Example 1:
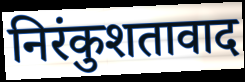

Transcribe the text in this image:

निरंकुशतावाद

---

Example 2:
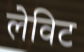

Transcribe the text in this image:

लेविट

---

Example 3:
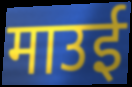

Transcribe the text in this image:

माउई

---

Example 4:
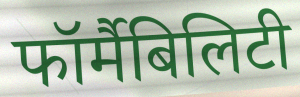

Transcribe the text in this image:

फॉर्मैबिलिटी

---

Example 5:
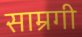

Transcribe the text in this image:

साम्रगी